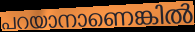
പറയാനാണെങ്കിൽ